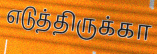
எடுத்திருக்கா